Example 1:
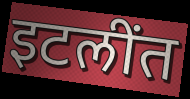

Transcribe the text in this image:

इटलींत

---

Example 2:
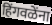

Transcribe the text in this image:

हिंगवळेंना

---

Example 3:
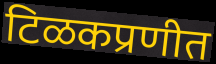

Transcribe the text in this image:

टिळकप्रणीत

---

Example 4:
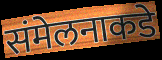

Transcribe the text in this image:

संमेलनाकडे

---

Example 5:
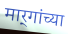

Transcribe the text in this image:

मार्गांच्या